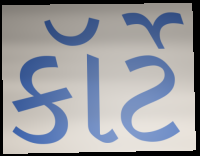
કૉર્ટે